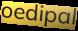
oedipal